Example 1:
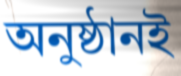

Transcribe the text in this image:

অনুষ্ঠানই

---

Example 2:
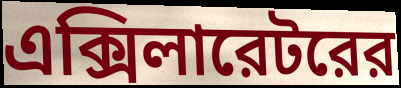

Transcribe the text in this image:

এক্সিলারেটরের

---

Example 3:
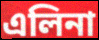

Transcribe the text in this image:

এলিনা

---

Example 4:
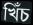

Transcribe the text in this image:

খিঁচ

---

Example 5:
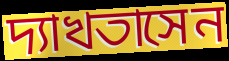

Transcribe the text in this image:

দ্যাখতাসেন